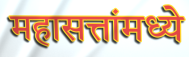
महासत्तांमध्ये